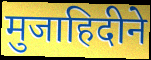
मुजाहिदीने